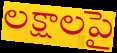
లక్షాలపై